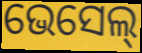
ଭେସେଲ୍